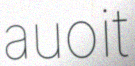
auoit